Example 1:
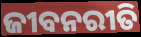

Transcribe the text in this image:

ଜୀବନରୀତି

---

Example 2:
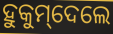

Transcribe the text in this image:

ହୁକୁମ୍‌ଦେଲେ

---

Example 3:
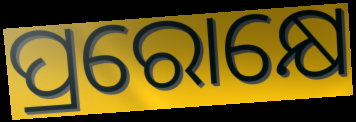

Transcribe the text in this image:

ପ୍ରରୋକ୍ଷେ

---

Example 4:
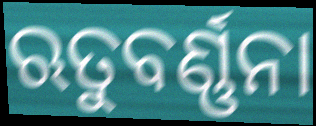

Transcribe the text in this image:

ଋତୁବର୍ଣ୍ଣନା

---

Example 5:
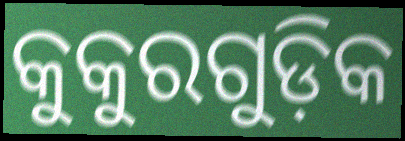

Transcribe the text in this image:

କୁକୁରଗୁଡ଼ିକ